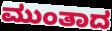
ಮುಂತಾದ